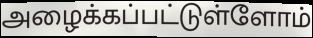
அழைக்கப்பட்டுள்ளோம்